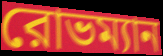
রোভম্যান